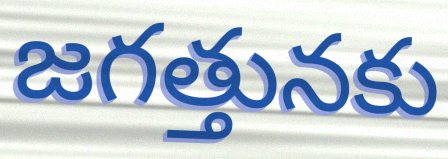
జగత్తునకు